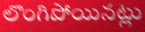
లొంగిపోయినట్లు